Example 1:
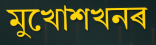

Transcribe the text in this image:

মুখোশখনৰ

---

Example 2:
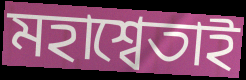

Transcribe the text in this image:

মহাশ্বেতাই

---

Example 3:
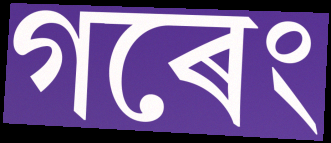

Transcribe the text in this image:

গৰেং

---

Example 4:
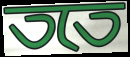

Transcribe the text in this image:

ততে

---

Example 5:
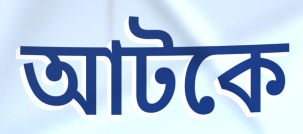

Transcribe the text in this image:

আটকে